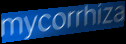
mycorrhiza